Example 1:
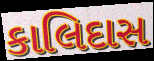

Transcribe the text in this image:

કાલિદાસ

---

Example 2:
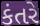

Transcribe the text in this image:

કંતરે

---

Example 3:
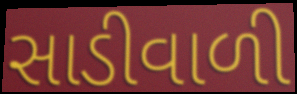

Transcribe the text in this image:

સાડીવાળી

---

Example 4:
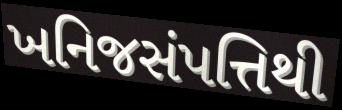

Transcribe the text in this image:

ખનિજસંપત્તિથી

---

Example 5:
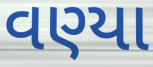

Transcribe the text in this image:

વણ્યા